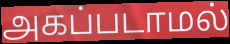
அகப்படாமல்